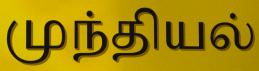
முந்தியல்